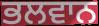
ਭਲਵਾਨ